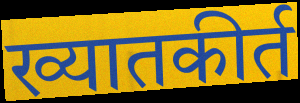
ख्यातकीर्त